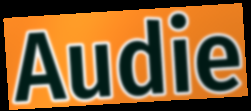
Audie